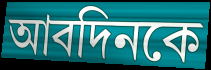
আবদিনকে